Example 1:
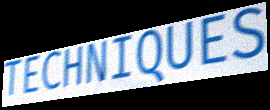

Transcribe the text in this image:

TECHNIQUES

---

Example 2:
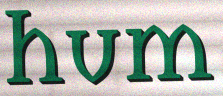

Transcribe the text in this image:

hum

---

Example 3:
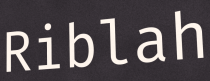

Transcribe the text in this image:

Riblah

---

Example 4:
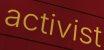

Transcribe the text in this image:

activist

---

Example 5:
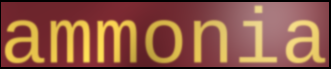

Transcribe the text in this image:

ammonia